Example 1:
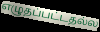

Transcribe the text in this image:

எழுதப்பட்டதல்ல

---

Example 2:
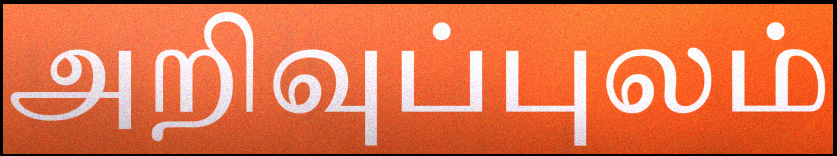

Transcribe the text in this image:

அறிவுப்புலம்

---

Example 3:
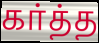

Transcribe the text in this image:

கர்த்த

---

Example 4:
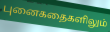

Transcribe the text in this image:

புனைகதைகளிலும்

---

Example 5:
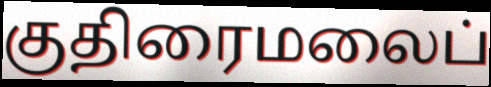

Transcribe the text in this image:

குதிரைமலைப்